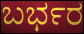
ಬರ್ಭರ